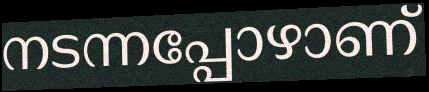
നടന്നപ്പോഴാണ്